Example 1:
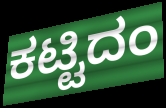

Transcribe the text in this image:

ಕಟ್ಟಿದಂ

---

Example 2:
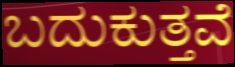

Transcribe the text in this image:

ಬದುಕುತ್ತವೆ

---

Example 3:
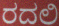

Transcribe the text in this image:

ರದಲಿ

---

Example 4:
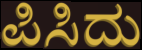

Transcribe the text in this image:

ಪಿಸಿದು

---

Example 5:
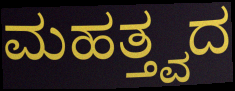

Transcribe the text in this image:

ಮಹತ್ತ್ವದ